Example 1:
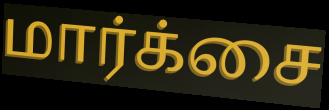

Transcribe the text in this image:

மார்க்சை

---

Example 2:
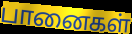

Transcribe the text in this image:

பானைகள்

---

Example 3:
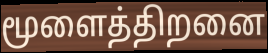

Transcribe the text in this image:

மூளைத்திறனை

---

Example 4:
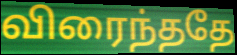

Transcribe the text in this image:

விரைந்ததே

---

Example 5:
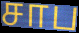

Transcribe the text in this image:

சாப